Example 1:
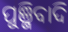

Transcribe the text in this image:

ପୁଞ୍ଜିବାଦି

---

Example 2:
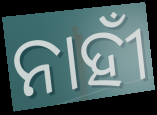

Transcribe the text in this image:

ନାହୀଁ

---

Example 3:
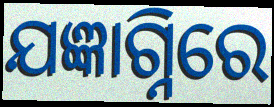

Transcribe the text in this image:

ଯଜ୍ଞାଗ୍ନିରେ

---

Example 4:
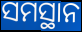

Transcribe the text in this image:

ସମସ୍ଥାନ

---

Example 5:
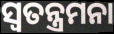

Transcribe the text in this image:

ସ୍ୱତନ୍ତ୍ରମନା